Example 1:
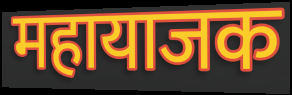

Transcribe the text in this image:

महायाजक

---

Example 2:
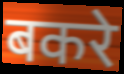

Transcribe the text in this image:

बकरे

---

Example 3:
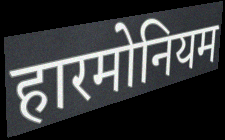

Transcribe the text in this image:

हारमोनियम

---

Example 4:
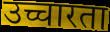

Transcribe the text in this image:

उच्चारता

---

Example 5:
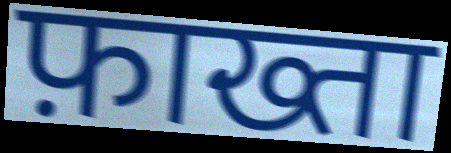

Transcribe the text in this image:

फ़ाख्ता